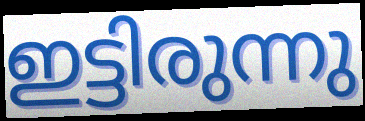
ഇട്ടിരുന്നു